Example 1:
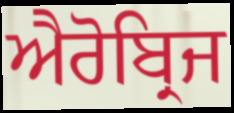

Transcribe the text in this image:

ਐਰੋਬ੍ਰਿਜ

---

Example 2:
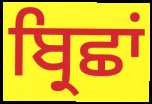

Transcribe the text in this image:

ਬ੍ਰਿਛਾਂ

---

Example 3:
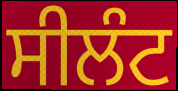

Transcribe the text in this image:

ਸੀਲੰਟ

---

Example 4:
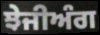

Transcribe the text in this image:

ਝੇਜੀਅੰਗ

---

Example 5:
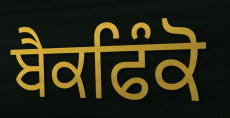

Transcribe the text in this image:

ਬੈਕਫਿੰਕੋ